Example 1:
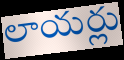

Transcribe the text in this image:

లాయర్లు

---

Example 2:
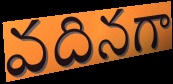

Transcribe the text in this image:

వదినగా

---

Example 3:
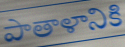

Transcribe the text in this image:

పాతాళానికి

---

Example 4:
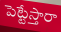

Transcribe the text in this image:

పెట్టేస్తారా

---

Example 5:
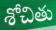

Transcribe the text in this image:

శోచితు